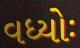
વધ્યોઃ